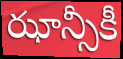
ఝాన్సీకీ